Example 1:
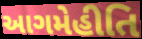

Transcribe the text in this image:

આગમેહીતિ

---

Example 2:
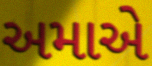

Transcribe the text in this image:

અમાએ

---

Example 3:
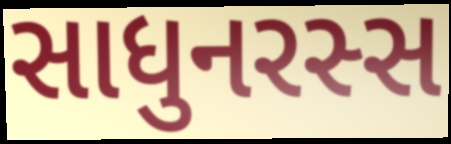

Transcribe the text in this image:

સાધુનરસ્સ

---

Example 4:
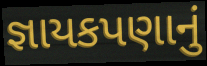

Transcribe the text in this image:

જ્ઞાયકપણાનું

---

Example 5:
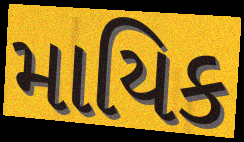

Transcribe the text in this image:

માયિક